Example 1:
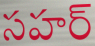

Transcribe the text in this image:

సహర్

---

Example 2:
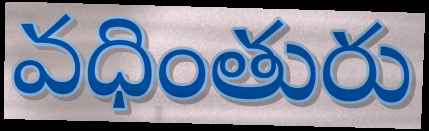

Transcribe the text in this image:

వధింతురు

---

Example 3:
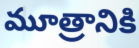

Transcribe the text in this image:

మూత్రానికి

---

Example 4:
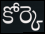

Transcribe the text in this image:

కోర్కె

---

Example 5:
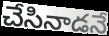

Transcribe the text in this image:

చేసినాడనే